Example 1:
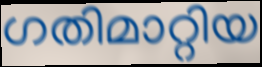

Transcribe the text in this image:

ഗതിമാറ്റിയ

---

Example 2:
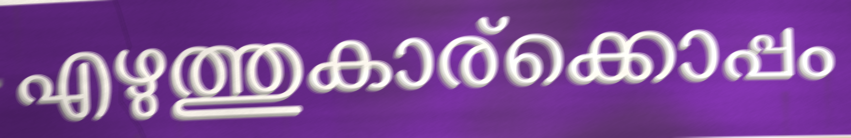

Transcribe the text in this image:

എഴുത്തുകാര്ക്കൊപ്പം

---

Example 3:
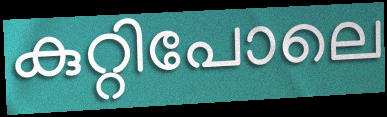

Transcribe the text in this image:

കുറ്റിപോലെ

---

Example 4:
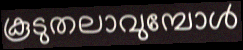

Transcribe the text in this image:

കൂടുതലാവുമ്പോൾ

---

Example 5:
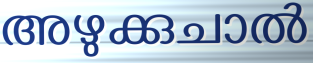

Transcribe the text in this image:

അഴുക്കുചാൽ